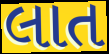
લાત